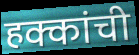
हक्कांची